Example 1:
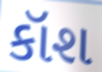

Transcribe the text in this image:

કૉશ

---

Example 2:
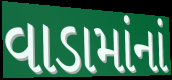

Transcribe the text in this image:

વાડામાંનાં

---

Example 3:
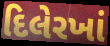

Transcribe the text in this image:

દિલેરખાં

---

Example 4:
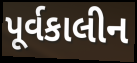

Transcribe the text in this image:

પૂર્વકાલીન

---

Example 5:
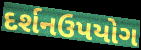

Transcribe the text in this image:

દર્શનઉપયોગ